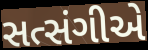
સત્સંગીએ